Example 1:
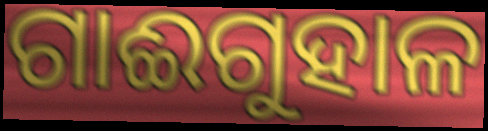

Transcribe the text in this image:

ଗାଈଗୁହାଳ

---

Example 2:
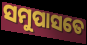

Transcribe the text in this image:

ସମୁପାସତେ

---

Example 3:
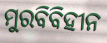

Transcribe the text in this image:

ମୁରବିବିହୀନ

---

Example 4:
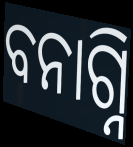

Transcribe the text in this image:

ବନାଗ୍ନି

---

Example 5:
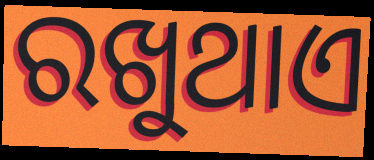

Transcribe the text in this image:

ରଖୁଥାଏ